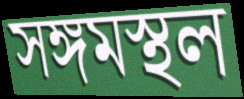
সঙ্গমস্থল